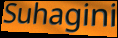
Suhagini